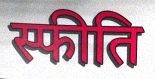
स्‍फीति